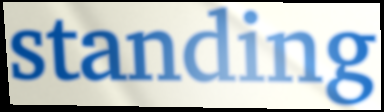
standing